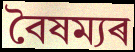
বৈষম্যৰ